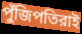
পুঁজিপতিরাই